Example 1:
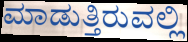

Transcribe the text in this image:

ಮಾಡುತ್ತಿರುವಲ್ಲಿ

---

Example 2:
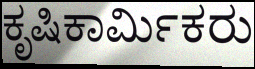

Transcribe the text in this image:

ಕೃಷಿಕಾರ್ಮಿಕರು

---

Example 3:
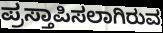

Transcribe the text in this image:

ಪ್ರಸ್ತಾಪಿಸಲಾಗಿರುವ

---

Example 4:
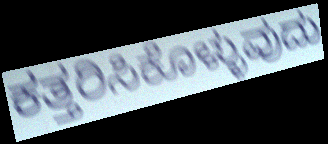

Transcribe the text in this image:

ಕತ್ತರಿಸಿಕೊಳ್ಳುವುದು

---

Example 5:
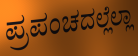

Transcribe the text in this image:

ಪ್ರಪಂಚದಲ್ಲೆಲ್ಲಾ